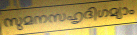
സുമനസഹൃദിഗമ്യാം